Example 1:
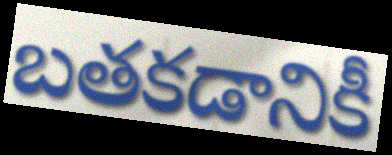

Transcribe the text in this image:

బతకడానికీ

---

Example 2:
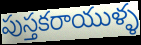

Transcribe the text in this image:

పుస్తకరాయుళ్ళ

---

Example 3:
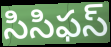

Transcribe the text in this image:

సిసిఫస్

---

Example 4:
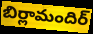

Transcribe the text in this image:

బిర్లామందిర్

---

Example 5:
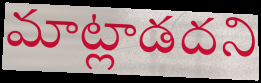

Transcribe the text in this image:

మాట్లాడదని